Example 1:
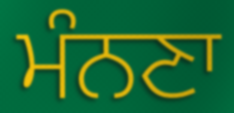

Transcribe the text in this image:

ਮੰਨਣਾ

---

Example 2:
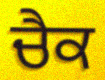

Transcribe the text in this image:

ਚੈਕ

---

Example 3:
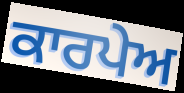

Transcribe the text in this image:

ਕਾਰਪੇਅ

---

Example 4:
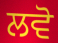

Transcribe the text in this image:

ਲਵੋ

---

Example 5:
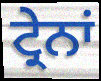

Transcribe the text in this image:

ਟ੍ਰੇਨਾਂ